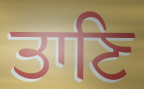
ਤਾਣਿ